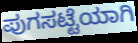
ಪುಗಸಟ್ಟೆಯಾಗಿ